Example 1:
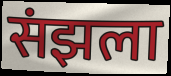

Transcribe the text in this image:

संझला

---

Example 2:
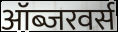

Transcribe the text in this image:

ऑब्जरवर्स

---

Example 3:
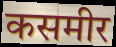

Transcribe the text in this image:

कसमीर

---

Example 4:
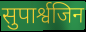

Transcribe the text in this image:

सुपार्श्वजिन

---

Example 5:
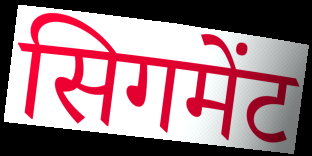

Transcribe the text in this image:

सिगमेंट